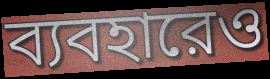
ব্যবহারেও